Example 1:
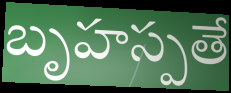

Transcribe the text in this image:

బృహస్పతే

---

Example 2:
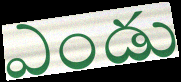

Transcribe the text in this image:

ఎండు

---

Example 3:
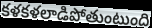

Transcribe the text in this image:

కళకళలాడిపోతుంటుంది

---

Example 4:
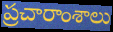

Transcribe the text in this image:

ప్రచారాంశాలు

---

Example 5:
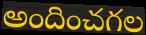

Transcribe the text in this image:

అందించగల